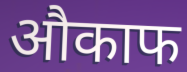
औकाफ